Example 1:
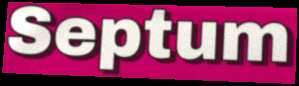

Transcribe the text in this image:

Septum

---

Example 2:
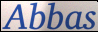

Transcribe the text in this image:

Abbas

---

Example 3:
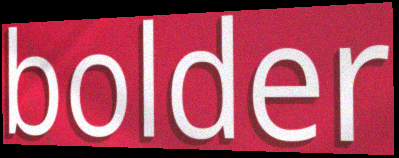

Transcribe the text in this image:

bolder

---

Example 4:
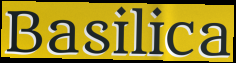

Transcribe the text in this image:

Basilica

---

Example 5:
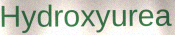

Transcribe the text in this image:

Hydroxyurea